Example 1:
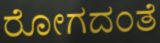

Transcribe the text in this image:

ರೋಗದಂತೆ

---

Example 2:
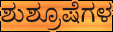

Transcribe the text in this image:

ಶುಶ್ರೂಷೆಗಳ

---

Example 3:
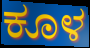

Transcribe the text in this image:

ಕೂಳ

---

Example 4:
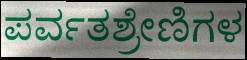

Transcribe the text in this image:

ಪರ್ವತಶ್ರೇಣಿಗಳ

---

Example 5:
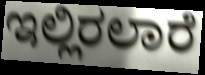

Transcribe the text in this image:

ಇಲ್ಲಿರಲಾರೆ